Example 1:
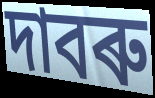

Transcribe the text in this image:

দাবৰু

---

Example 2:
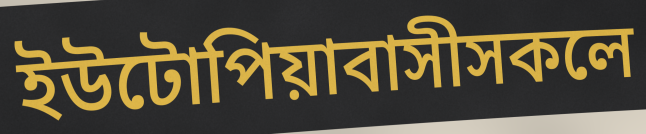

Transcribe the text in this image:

ইউটোপিয়াবাসীসকলে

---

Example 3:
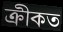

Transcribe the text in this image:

ক্ৰীকত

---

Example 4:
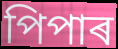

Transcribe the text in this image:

পিপাৰ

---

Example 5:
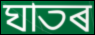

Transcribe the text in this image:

ঘাতৰ